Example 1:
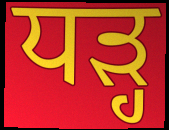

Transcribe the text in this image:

ਧੜ੍ਹ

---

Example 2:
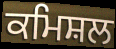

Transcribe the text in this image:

ਕਮਿਸ਼ਲ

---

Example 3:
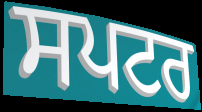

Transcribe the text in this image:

ਸਪਟਰ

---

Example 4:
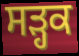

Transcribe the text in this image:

ਸੜ੍ਹਕ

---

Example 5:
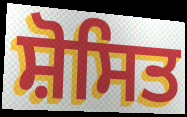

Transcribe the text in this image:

ਸ਼ੋਸਿਤ